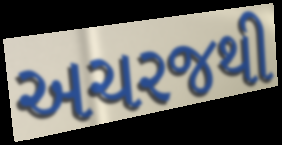
અચરજથી